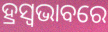
ହ୍ରସ୍ୱଭାବରେ